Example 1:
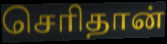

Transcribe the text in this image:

செரிதான்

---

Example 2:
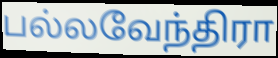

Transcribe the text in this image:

பல்லவேந்திரா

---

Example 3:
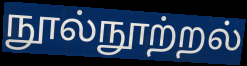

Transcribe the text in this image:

நூல்நூற்றல்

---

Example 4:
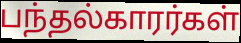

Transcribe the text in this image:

பந்தல்காரர்கள்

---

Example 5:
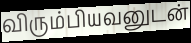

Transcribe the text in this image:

விரும்பியவனுடன்